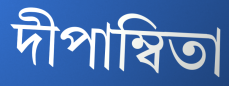
দীপাম্বিতা